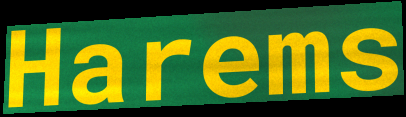
Harems